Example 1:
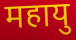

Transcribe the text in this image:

महायु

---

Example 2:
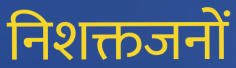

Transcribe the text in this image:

निशक्तजनों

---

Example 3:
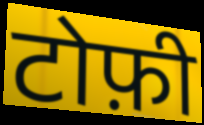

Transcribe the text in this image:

टोफ़ी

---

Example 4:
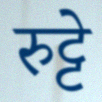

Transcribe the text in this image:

रुट्टे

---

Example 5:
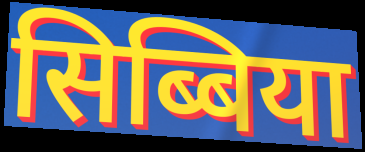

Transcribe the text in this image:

सिब्बिया